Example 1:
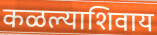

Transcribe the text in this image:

कळल्याशिवाय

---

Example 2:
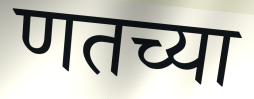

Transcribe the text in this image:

णतच्या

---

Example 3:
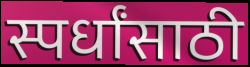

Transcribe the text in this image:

स्पर्धांसाठी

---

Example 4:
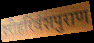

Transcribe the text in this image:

श्रीहरिवंशपुराण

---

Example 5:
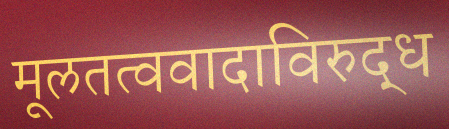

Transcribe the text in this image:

मूलतत्ववादाविरुद्ध